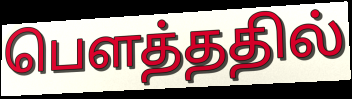
பௌத்ததில்